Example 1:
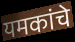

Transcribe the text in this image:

यमकांचे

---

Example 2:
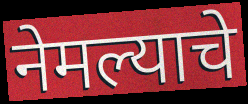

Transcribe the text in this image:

नेमल्याचे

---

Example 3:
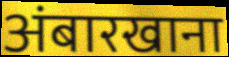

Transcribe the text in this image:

अंबारखाना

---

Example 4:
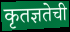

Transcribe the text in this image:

कृतज्ञतेची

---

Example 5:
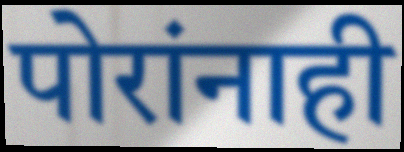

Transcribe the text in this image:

पोरांनाही